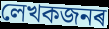
লেখকজনৰ